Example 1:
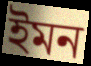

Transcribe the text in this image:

ইমন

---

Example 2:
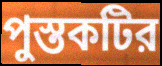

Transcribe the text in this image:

পুস্তকটির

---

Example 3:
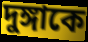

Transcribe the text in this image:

দুঙ্গাকে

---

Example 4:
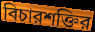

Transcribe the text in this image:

বিচারশক্তির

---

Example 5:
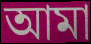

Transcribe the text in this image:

আমা